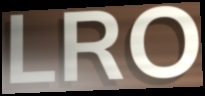
LRO